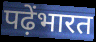
पढ़ेंभारत